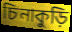
চিনাকুড়ি